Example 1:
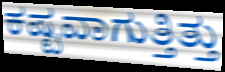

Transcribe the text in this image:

ಕಷ್ಟವಾಗುತ್ತಿತ್ತು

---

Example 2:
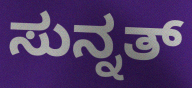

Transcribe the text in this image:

ಸುನ್ನತ್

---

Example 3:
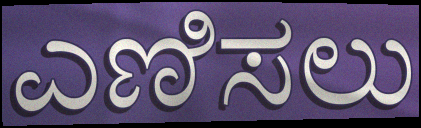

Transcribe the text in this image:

ಎಣಿಸಲು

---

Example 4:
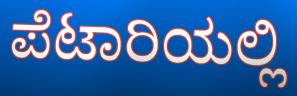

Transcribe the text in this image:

ಪೆಟಾರಿಯಲ್ಲಿ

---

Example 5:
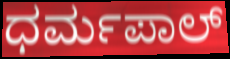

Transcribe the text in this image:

ಧರ್ಮಪಾಲ್